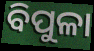
ବିପୁଳା